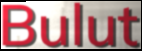
Bulut